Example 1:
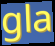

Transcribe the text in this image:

gla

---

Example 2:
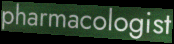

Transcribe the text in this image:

pharmacologist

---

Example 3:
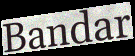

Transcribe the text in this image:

Bandar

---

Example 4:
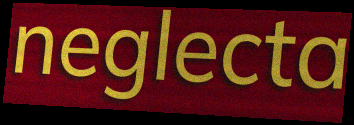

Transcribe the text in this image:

neglecta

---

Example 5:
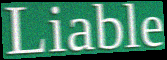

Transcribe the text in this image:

Liable